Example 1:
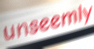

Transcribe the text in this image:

unseemly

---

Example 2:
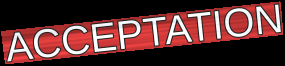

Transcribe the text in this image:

ACCEPTATION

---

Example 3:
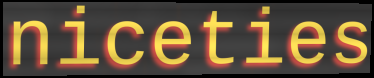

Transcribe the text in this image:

niceties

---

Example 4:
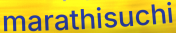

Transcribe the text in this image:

marathisuchi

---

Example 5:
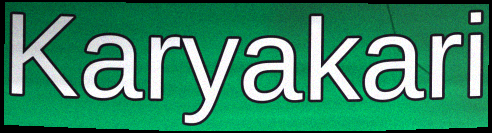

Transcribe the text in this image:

Karyakari